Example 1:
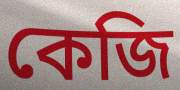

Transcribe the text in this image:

কেজি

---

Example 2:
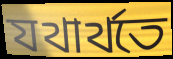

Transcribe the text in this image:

যথাৰ্থতে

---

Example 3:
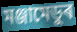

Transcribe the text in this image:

মঞ্জামেডুৰ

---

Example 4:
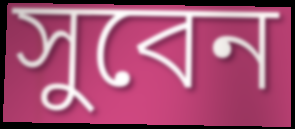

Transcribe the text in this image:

সুবেন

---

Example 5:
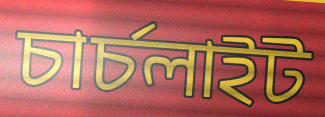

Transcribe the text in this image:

চাৰ্চলাইট